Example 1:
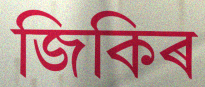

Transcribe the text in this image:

জিকিৰ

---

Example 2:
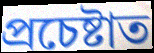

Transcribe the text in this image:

প্ৰচেষ্টাত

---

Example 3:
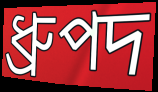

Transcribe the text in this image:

ধ্ৰুপদ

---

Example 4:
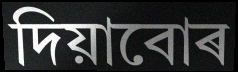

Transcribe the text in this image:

দিয়াবোৰ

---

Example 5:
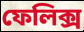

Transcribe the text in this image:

ফেলিক্স